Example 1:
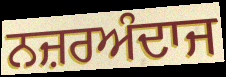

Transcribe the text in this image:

ਨਜ਼ਰਅੰਦਾਜ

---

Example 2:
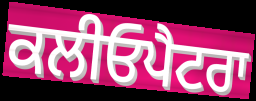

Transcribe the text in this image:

ਕਲੀਓਪੈਟਰਾ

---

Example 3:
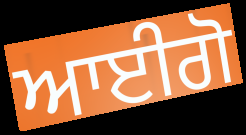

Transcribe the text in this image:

ਆਈਗੋ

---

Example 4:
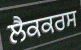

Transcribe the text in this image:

ਲੈਕਕਰਸ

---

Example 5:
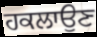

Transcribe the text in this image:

ਹਕਲਾਉਣ